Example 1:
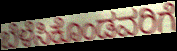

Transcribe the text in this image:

ಬೆಳೆಸಿಕೊಂಡವರಿಗೆ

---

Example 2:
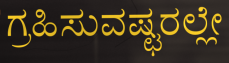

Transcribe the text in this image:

ಗ್ರಹಿಸುವಷ್ಟರಲ್ಲೇ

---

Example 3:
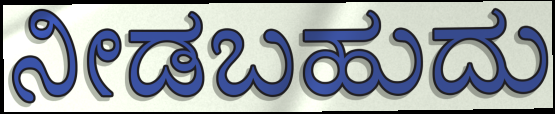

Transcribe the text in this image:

ನೀಡಬಹುದು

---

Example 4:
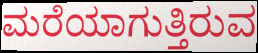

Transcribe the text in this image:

ಮರೆಯಾಗುತ್ತಿರುವ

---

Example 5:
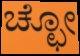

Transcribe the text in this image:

ಚ್ಛೋ